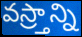
వస్ర్తాన్ని